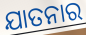
ଯାତନାର